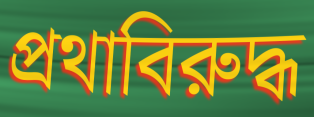
প্রথাবিরুদ্ধ